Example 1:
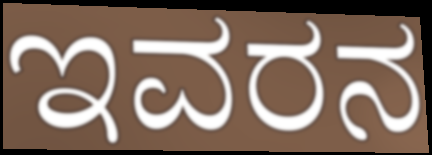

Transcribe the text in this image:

ಇವರನ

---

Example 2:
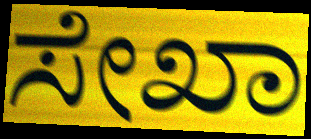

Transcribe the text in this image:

ಸೇಖಾ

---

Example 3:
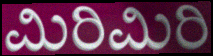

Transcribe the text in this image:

ಮಿರಿಮಿರಿ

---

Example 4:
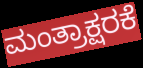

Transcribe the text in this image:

ಮಂತ್ರಾಕ್ಷರಕೆ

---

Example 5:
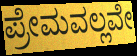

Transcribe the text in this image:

ಪ್ರೇಮವಲ್ಲವೇ